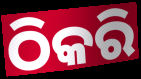
ଠିକରି